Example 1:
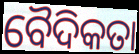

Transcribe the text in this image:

ବୈଦିକତା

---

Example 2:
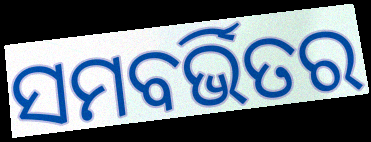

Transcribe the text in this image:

ସମବର୍ଭିତର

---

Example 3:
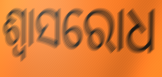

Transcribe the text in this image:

ଶ୍ୱାସରୋଧ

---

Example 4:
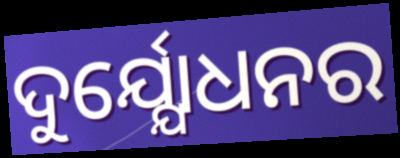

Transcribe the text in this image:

ଦୁର୍ଯ୍ଯୋଧନର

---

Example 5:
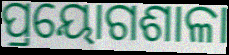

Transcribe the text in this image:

ପ୍ରୟୋଗଶାଳା